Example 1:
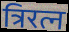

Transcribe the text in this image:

त्रिरत्न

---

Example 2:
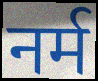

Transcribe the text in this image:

नर्म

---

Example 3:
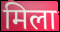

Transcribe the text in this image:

मिला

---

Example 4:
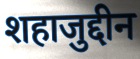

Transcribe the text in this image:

शहाजुद्दीन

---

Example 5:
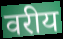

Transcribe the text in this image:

वरीय